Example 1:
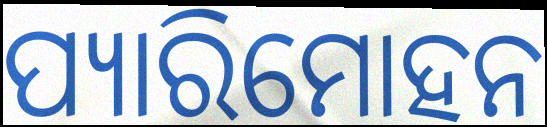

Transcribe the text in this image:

ପ୍ୟାରିମୋହନ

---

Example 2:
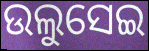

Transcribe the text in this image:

ଉଲୁସେଇ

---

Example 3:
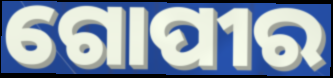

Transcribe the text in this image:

ଗୋପୀର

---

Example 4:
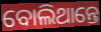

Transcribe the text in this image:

ବୋଲିଥାନ୍ତେ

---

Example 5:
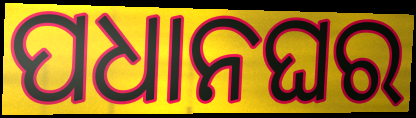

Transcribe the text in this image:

ପଧାନଘର